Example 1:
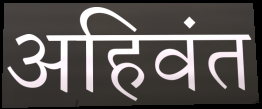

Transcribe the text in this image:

अहिवंत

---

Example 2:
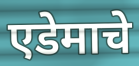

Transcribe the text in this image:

एडेमाचे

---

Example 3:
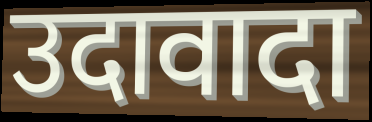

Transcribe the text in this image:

उदावादा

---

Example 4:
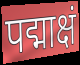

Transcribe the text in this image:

पद्माक्षं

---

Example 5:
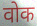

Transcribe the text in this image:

वोक